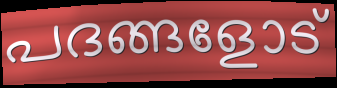
പദങ്ങളോട്